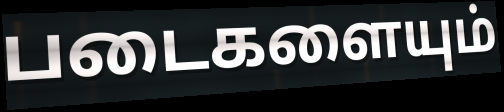
படைகளையும்